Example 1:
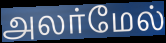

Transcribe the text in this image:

அலர்மேல்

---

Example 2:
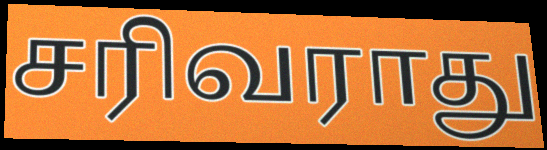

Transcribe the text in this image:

சரிவராது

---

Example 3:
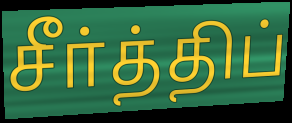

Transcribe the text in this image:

சீர்த்திப்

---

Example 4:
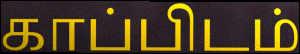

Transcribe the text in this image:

காப்பிடம்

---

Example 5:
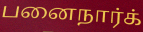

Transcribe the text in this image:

பனைநார்க்